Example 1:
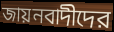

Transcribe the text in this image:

জায়নবাদীদের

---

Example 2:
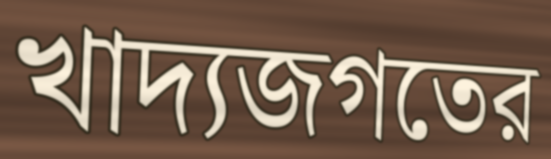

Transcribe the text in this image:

খাদ্যজগতের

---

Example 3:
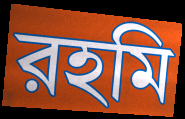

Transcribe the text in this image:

রহমি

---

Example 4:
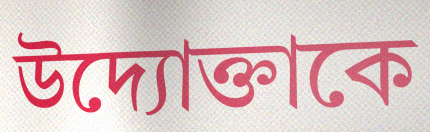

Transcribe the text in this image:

উদ্যোক্তাকে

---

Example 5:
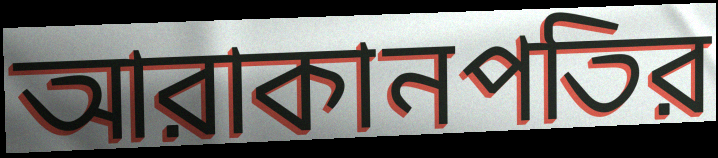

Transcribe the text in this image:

আরাকানপতির